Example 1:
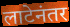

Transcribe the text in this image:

लाटेनंतर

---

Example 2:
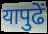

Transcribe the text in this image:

यापुढें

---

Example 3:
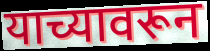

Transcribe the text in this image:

याच्यावरून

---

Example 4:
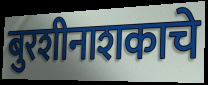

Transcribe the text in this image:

बुरशीनाशकाचे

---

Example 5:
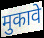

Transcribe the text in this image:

मुकावे